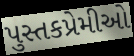
પુસ્તકપ્રેમીઓ